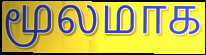
மூலமாக